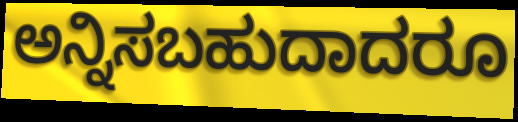
ಅನ್ನಿಸಬಹುದಾದರೂ